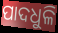
ପାଦଧୁଳି